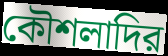
কৌশলাদির